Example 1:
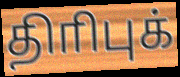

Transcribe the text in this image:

திரிபுக்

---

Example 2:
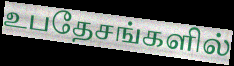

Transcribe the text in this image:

உபதேசங்களில்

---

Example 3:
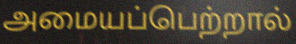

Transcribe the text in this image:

அமையப்பெற்றால்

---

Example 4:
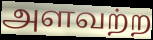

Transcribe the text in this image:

அளவற்ற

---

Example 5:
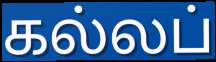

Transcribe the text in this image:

கல்லப்